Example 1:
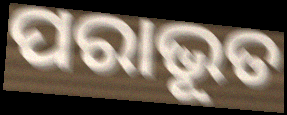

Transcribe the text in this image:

ପରାଭୂତ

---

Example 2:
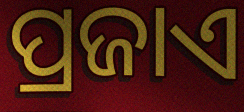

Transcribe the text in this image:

ପ୍ରଜାଏ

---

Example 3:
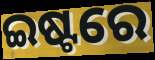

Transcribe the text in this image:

ଇଷ୍ଟରେ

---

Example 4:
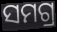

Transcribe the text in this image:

ସମଗ୍ର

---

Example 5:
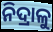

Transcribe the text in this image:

ନିଦ୍ରାଳୁ